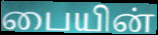
பையின்